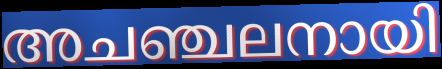
അചഞ്ചലനായി